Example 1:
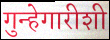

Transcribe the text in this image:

गुन्हेगारीशी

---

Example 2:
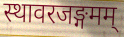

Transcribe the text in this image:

स्थावरजङ्गमम्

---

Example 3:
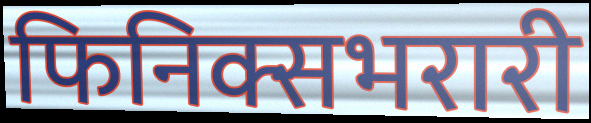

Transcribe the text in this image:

फिनिक्सभरारी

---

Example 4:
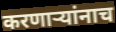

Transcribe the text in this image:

करणार्‍यांनाच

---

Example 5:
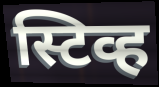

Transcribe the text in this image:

स्टिव्ह